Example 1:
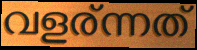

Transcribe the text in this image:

വളര്ന്നത്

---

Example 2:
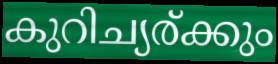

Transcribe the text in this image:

കുറിച്യര്ക്കും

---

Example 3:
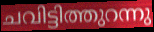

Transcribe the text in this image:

ചവിട്ടിത്തുറന്നു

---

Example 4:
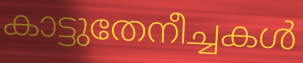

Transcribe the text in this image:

കാട്ടുതേനീച്ചകൾ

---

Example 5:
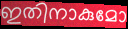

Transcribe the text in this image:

ഇതിനാകുമോ